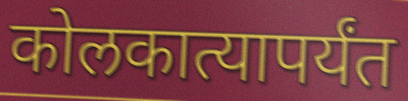
कोलकात्यापर्यंत